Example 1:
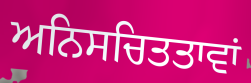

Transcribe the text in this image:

ਅਨਿਸਚਿਤਤਾਵਾਂ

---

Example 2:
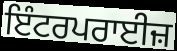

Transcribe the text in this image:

ਇੰਟਰਪਰਾਈਜ਼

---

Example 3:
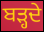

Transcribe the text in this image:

ਬੜ੍ਹਦੇ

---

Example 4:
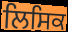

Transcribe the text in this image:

ਲਿਸਿਕ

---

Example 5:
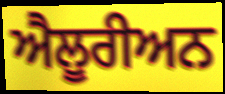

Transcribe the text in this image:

ਐਲੂਰੀਅਨ